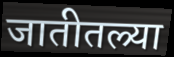
जातीतल्या